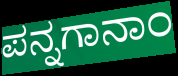
ಪನ್ನಗಾನಾಂ